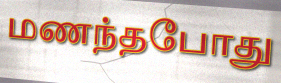
மணந்தபோது